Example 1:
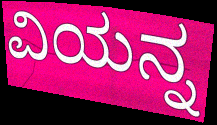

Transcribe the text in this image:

ವಿಯನ್ನ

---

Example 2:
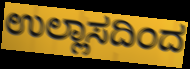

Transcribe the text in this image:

ಉಲ್ಲಾಸದಿಂದ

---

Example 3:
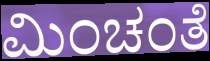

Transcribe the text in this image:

ಮಿಂಚಂತೆ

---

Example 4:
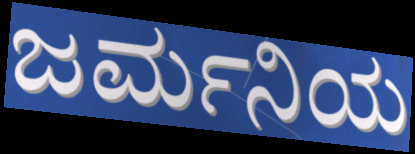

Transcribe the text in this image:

ಜರ್ಮನಿಯ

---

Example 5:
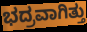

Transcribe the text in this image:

ಭದ್ರವಾಗಿತ್ತು